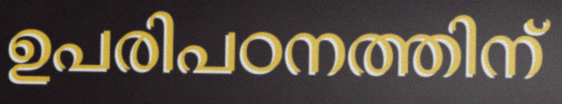
ഉപരിപഠനത്തിന്